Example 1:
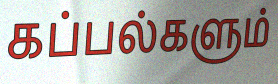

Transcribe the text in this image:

கப்பல்களும்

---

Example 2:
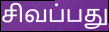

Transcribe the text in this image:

சிவப்பது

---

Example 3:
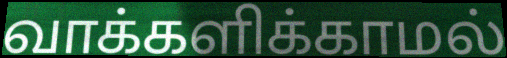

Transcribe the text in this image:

வாக்களிக்காமல்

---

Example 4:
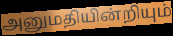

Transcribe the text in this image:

அனுமதியின்றியும்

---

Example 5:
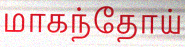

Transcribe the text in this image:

மாகந்தோய்